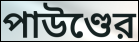
পাউণ্ডের